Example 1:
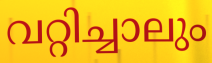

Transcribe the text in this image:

വറ്റിച്ചാലും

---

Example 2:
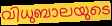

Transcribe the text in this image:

വിധുബാലയുടെ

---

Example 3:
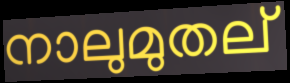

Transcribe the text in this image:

നാലുമുതല്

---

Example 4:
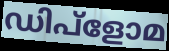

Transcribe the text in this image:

ഡിപ്ളോമ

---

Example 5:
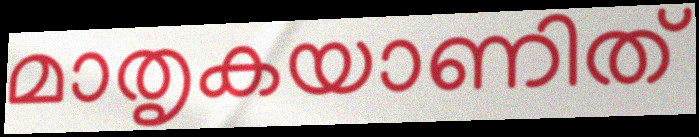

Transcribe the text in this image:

മാതൃകയാണിത്